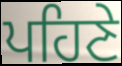
ਪਹਿਣੇ